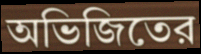
অভিজিতের